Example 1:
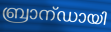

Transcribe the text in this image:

ബ്രാന്ഡായി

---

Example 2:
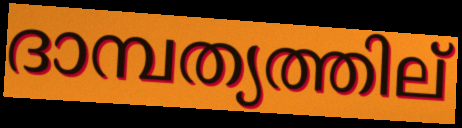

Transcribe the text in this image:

ദാമ്പത്യത്തില്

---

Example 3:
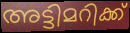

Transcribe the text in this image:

അട്ടിമറിക്ക്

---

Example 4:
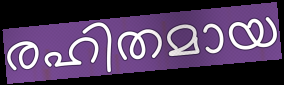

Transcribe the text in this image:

രഹിതമായ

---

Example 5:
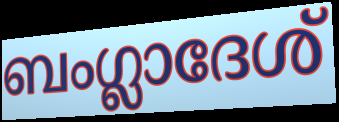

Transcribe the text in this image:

ബംഗ്ലാദേശ്